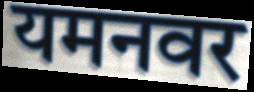
यमनवर